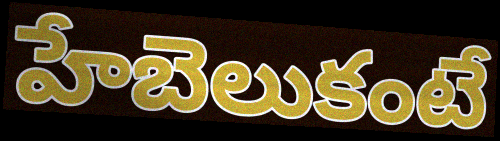
హేబెలుకంటే